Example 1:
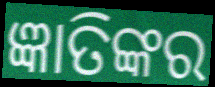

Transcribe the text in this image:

ଜ୍ଞାତିଙ୍କର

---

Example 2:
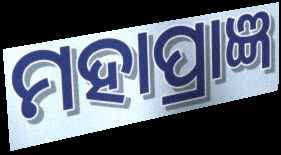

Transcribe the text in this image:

ମହାପ୍ରାଜ୍ଞ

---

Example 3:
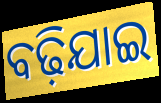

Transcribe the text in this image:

ବଢ଼ିଯାଇ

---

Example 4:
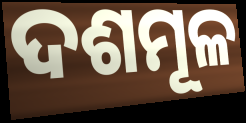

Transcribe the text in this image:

ଦଶମୂଳ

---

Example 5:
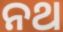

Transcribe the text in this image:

ନଥ